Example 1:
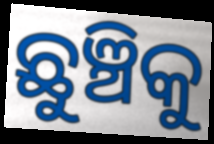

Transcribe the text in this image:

ଛୁଞ୍ଚିକୁ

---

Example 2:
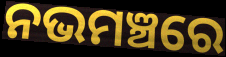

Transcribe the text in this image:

ନଭମଞ୍ଚରେ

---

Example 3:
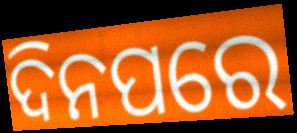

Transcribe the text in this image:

ଦିନପରେ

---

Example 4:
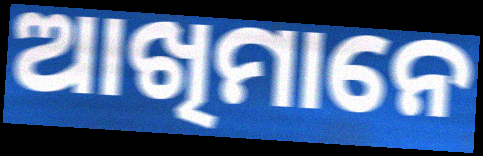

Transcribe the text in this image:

ଆଖିମାନେ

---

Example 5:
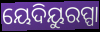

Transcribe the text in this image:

ୟେଦିୟୁରପ୍ପା